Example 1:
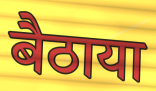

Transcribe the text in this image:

बैठाया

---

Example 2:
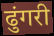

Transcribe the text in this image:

ढुंगरी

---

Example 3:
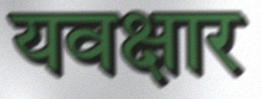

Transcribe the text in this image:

यवक्षार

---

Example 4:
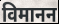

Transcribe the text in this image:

विमानन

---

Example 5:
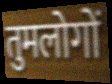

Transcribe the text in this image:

तुमलोगों